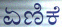
ಏಣಿಕೆ